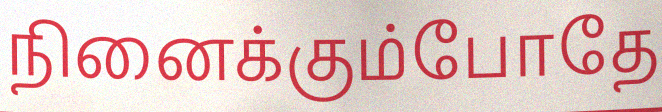
நினைக்கும்போதே